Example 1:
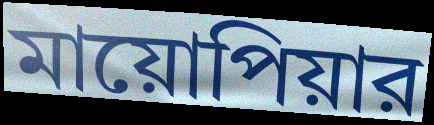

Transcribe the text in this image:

মায়োপিয়ার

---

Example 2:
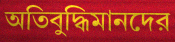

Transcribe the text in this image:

অতিবুদ্ধিমানদের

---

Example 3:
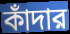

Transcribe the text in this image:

কাঁদার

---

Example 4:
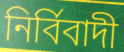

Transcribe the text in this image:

নির্বিবাদী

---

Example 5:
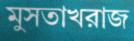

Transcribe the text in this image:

মুসতাখরাজ